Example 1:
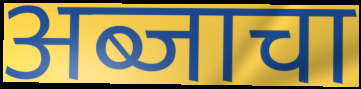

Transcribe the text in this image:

अब्जाचा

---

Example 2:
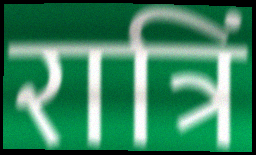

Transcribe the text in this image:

रात्रिं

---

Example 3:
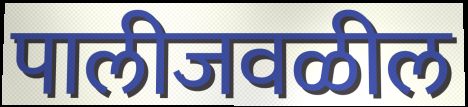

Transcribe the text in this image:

पालीजवळील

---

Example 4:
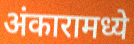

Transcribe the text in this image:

अंकारामध्ये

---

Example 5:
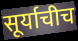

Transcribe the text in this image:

सूर्याचीच